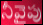
నీవైపు